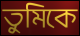
তুমিকে